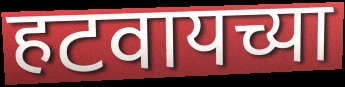
हटवायच्या